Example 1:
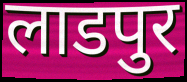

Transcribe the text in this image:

लाडपुर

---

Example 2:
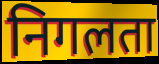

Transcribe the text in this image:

निगलता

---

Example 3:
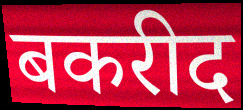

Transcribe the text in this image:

बकरीद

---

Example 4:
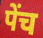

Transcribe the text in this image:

पेंच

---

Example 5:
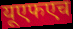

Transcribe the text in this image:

यूएफएच